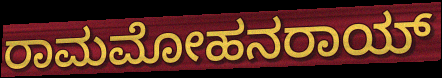
ರಾಮಮೋಹನರಾಯ್